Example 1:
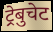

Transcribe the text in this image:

ट्रेबुचेट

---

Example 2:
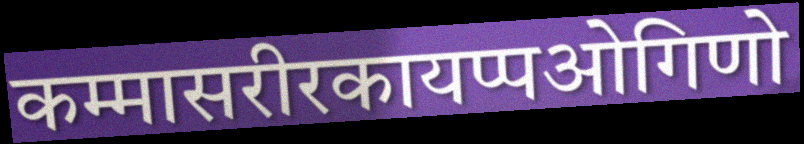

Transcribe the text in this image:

कम्मासरीरकायप्पओगिणो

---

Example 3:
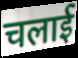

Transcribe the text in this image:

चलाई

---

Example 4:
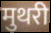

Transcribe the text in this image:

मुथरी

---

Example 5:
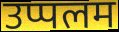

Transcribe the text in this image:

उप्पलम